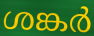
ശങ്കർ